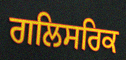
ਗਲਿਸਰਿਕ